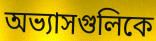
অভ্যাসগুলিকে